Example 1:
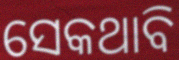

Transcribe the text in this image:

ସେକଥାବି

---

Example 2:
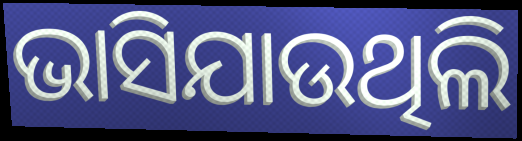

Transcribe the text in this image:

ଭାସିଯାଉଥିଲି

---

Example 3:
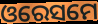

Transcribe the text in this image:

ଓରେସମେ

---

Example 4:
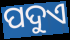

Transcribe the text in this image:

ପଦୁଏ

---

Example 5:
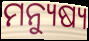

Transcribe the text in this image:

ମନ୍ୟୁଷ୍ୟ